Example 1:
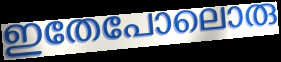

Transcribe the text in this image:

ഇതേപോലൊരു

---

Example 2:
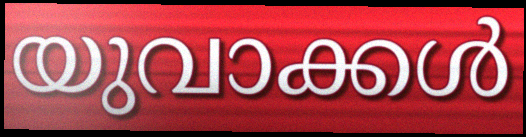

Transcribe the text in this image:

യുവാക്കൾ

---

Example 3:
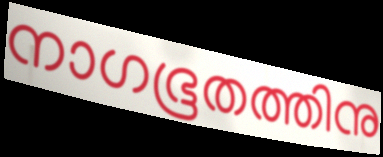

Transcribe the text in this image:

നാഗഭൂതത്തിനു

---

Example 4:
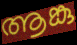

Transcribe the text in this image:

ആങ്കു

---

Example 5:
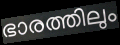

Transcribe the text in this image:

ഭാരത്തിലും